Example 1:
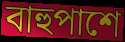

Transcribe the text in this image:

বাহুপাশে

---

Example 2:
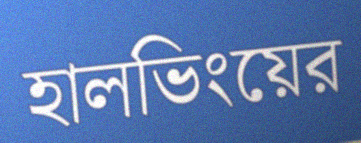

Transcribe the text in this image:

হালভিংয়ের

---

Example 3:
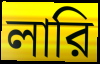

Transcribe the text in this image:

লারি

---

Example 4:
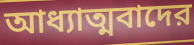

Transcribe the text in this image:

আধ্যাত্মবাদের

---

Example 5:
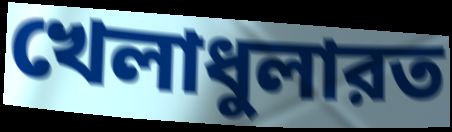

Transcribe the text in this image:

খেলাধুলারত